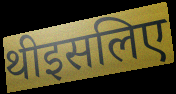
थीइसलिए